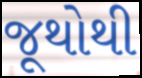
જૂથોથી